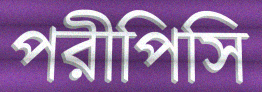
পরীপিসি